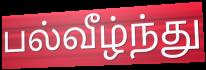
பல்வீழ்ந்து